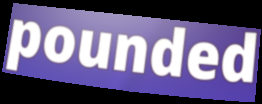
pounded